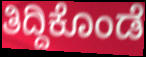
ತಿದ್ದಿಕೊಂಡೆ